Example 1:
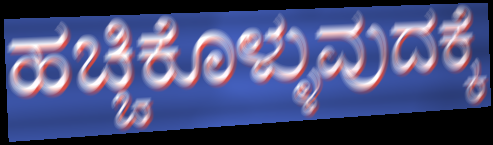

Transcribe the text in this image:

ಹಚ್ಚಿಕೊಳ್ಳುವುದಕ್ಕೆ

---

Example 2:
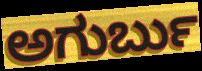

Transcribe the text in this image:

ಅಗುರ್ಬು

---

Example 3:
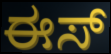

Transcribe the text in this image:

ಈಸ್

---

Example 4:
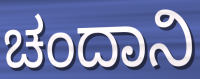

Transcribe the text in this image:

ಚಂದಾನಿ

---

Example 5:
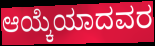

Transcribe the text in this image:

ಆಯ್ಕೆಯಾದವರ